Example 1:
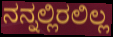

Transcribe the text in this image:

ನನ್ನಲ್ಲಿರಲಿಲ್ಲ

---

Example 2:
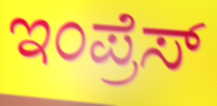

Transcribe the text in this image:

ಇಂಪ್ರೆಸ್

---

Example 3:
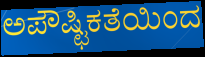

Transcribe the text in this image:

ಅಪೌಷ್ಟಿಕತೆಯಿಂದ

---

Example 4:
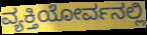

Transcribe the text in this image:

ವ್ಯಕ್ತಿಯೋರ್ವನಲ್ಲಿ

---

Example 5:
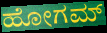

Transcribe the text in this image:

ಹೋಗಮ್